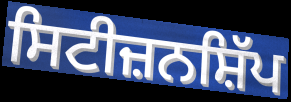
ਸਿਟੀਜ਼ਨਸ਼ਿੱਪ